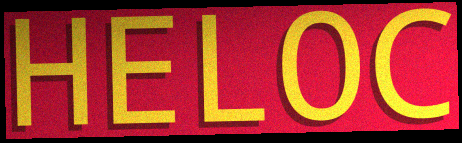
HELOC